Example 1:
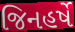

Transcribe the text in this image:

જિનહર્ષે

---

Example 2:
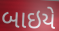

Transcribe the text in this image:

બાઇયે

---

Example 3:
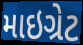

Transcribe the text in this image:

માઇગ્રેટ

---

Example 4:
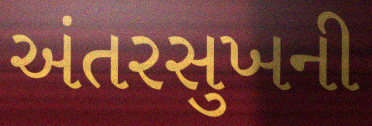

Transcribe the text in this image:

અંતરસુખની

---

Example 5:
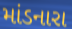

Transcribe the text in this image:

માંડનારા